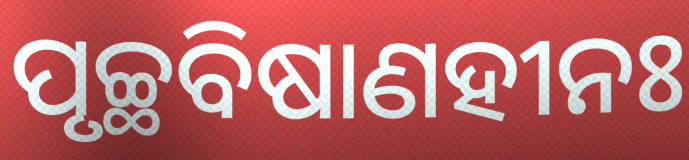
ପୃଚ୍ଛବିଷାଣହୀନଃ